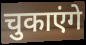
चुकाएंगे